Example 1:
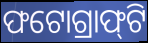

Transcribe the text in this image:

ଫଟୋଗ୍ରାଫ୍‌ଟି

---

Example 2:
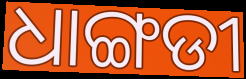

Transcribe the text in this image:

ଧାଙ୍ଗଡୀ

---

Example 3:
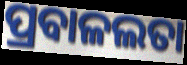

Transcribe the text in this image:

ପ୍ରବାଳଲତା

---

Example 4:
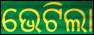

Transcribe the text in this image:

ଭେଟିଲା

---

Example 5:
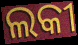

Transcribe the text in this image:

ଲକୀ